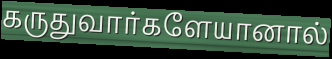
கருதுவார்களேயானால்